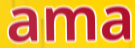
ama